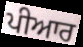
ਪੀਆਰ